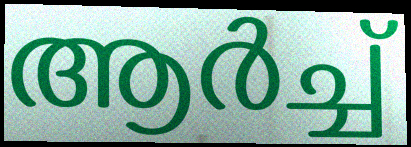
ആർച്ച്